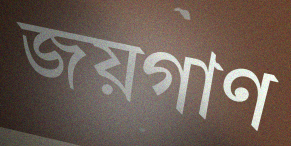
জয়গাণ